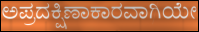
ಅಪ್ರದಕ್ಷಿಣಾಕಾರವಾಗಿಯೇ